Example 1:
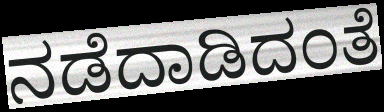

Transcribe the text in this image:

ನಡೆದಾಡಿದಂತೆ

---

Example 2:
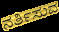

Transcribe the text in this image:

ನರ್ತಿಸುವ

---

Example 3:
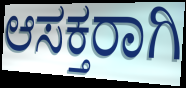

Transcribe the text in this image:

ಆಸಕ್ತರಾಗಿ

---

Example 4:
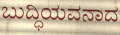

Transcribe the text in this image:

ಬುದ್ಧಿಯವನಾದ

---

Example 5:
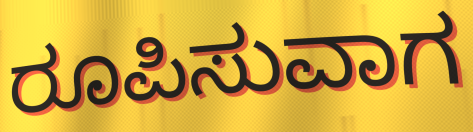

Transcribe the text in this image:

ರೂಪಿಸುವಾಗ